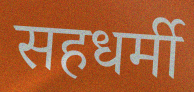
सहधर्मी